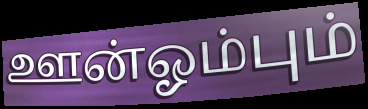
ஊன்ஓம்பும்